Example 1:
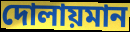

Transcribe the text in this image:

দোলায়মান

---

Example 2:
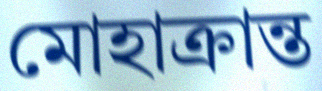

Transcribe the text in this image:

মোহাক্রান্ত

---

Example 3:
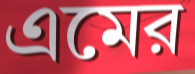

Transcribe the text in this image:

এমের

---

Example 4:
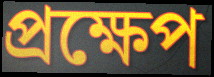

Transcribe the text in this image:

প্রক্ষেপ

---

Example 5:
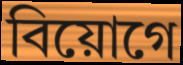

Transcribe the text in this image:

বিয়োগে